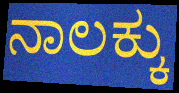
ನಾಲಕ್ಕು